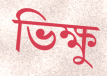
ভিক্ষু